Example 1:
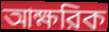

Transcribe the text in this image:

আক্ষরিক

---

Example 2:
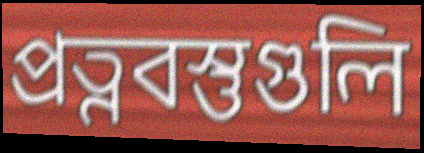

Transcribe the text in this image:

প্রত্নবস্তুগুলি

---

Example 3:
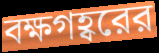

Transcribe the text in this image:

বক্ষগহ্বরের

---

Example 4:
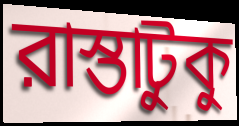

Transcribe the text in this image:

রাস্তাটুকু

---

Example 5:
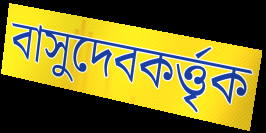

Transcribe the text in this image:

বাসুদেবকর্ত্তৃক